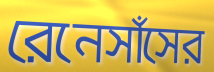
রেনেসাঁসের